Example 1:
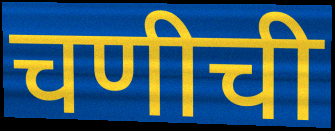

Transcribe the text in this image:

चणीची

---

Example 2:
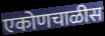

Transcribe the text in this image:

एकोणचाळीस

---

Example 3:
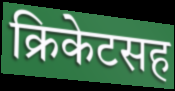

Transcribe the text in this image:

क्रिकेटसह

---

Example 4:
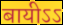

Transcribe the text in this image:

बायीऽऽ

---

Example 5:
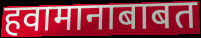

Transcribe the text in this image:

हवामानाबाबत